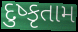
દુષ્કૃતામ